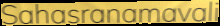
Sahasranamavali